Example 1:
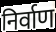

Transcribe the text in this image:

निर्वाण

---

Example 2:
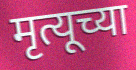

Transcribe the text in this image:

मृत्यूच्या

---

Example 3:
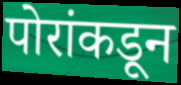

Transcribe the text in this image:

पोरांकडून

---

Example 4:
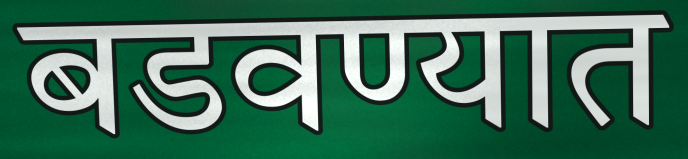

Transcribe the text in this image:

बडवण्यात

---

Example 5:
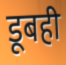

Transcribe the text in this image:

डूबही